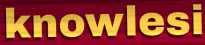
knowlesi